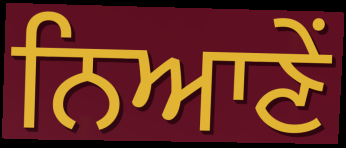
ਨਿਆਣੇਂ